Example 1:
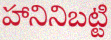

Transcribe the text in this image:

హానినిబట్టి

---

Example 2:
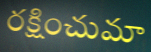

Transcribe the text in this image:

రక్షించుమా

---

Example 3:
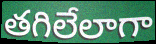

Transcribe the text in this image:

తగిలేలాగా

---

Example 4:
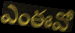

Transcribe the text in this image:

ఎంఈవో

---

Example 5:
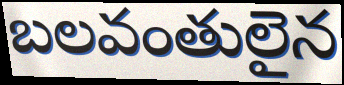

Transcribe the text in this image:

బలవంతులైన